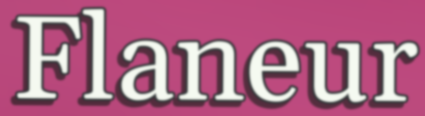
Flaneur